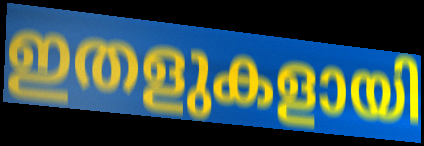
ഇതളുകളായി